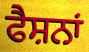
ਫੈਸ਼ਨਾਂ